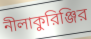
নীলাকুরিঞ্জির